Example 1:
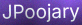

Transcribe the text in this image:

JPoojary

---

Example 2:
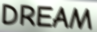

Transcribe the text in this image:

DREAM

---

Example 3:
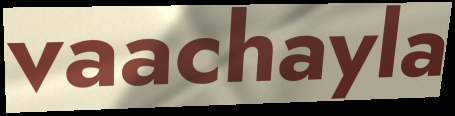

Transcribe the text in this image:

vaachayla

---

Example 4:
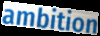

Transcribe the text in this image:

ambition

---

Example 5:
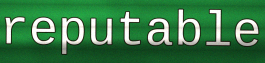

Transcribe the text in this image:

reputable